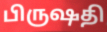
பிருஷதி